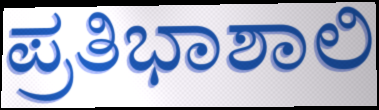
ಪ್ರತಿಭಾಶಾಲಿ